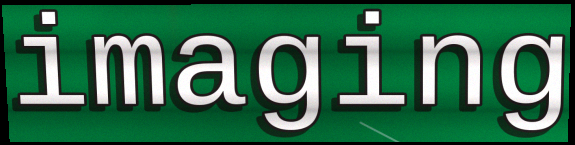
imaging